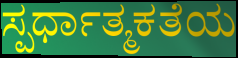
ಸ್ಪರ್ಧಾತ್ಮಕತೆಯ